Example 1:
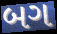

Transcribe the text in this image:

બગ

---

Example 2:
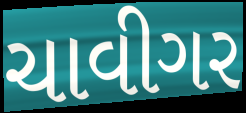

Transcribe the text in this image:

ચાવીગર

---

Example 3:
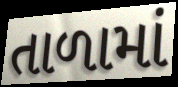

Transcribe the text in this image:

તાળામાં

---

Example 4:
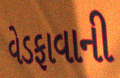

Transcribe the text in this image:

વેડફાવાની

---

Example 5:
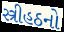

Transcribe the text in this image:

સ્ત્રીહઠનો